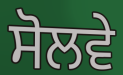
ਸੋਲਵੇ